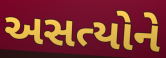
અસત્યોને